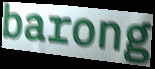
barong